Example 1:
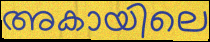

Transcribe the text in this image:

അകായിലെ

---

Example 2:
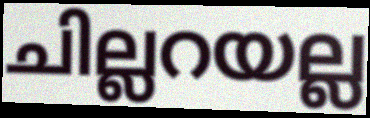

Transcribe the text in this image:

ചില്ലറയല്ല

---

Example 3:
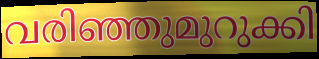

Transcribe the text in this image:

വരിഞ്ഞുമുറുക്കി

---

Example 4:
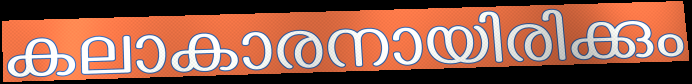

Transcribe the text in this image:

കലാകാരനായിരിക്കും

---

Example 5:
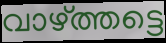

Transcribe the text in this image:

വാഴ്ത്തട്ടെ